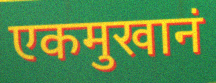
एकमुखानं